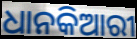
ଧାନକିଆରୀ